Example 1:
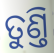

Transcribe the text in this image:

ତୁଣ୍ତି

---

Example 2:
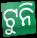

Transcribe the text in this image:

ଟୁନି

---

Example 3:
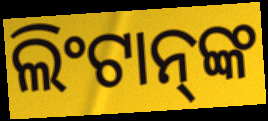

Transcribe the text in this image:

ଲିଂଟାନ୍‍ଙ୍କ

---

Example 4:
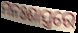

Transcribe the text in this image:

ମନଃଶାସ୍ତ୍ରରେ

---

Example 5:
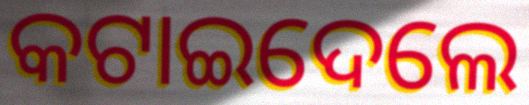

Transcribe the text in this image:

କଟାଇଦେଲେ